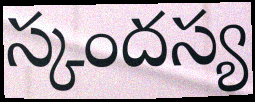
స్కందస్య